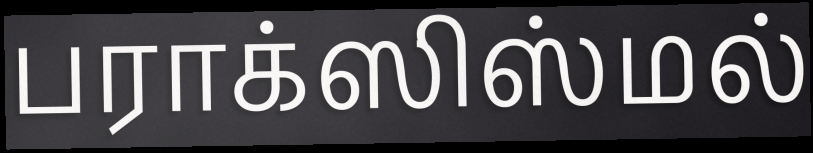
பராக்ஸிஸ்மல்